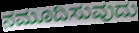
ನಮೂದಿಸುವುದು